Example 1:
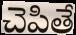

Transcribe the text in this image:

చెపితే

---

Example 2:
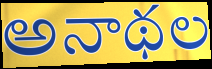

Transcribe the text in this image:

అనాథల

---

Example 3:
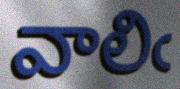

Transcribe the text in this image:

వాలిఁ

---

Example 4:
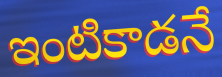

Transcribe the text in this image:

ఇంటికాడనే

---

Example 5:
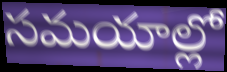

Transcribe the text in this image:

సమయాల్లో